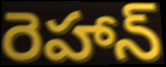
రెహాన్